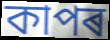
কাপৰ